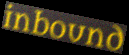
inbound